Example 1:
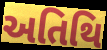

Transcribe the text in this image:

અતિથિ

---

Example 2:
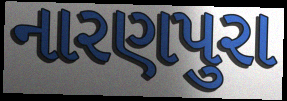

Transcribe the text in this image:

નારણપુરા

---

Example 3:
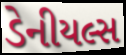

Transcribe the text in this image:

ડેનીયલ્સ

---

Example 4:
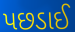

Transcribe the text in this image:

પછડાઈ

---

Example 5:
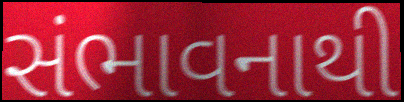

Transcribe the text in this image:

સંભાવનાથી